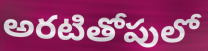
అరటితోపులో